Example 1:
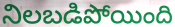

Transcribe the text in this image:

నిలబడిపోయింది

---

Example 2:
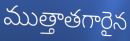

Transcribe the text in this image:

ముత్తాతగారైన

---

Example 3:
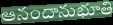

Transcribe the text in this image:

ఆనందానుభూతి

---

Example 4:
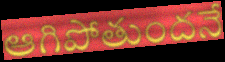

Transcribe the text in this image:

ఆగిపోతుందనే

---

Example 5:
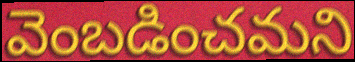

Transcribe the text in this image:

వెంబడించమని